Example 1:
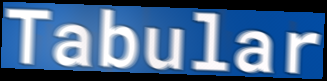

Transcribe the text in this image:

Tabular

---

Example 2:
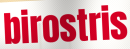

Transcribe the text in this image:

birostris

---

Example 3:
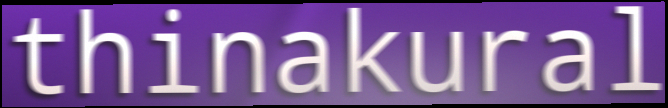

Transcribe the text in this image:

thinakural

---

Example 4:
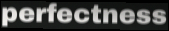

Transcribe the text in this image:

perfectness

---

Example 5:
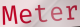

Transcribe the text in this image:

Meter